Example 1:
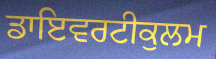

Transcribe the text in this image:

ਡਾਇਵਰਟੀਕੁਲਮ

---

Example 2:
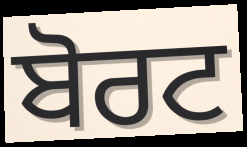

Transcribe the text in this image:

ਬੋਰਟ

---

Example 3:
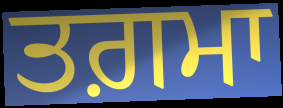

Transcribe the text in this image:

ਤਗ਼ਮਾ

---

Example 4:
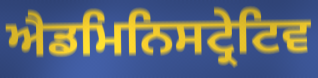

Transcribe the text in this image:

ਐਡਮਿਨਿਸਟ੍ਰੇਟਿਵ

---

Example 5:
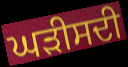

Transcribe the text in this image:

ਘੜੀਸਦੀ